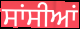
ਸਾਂਸੀਆਂ